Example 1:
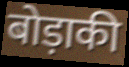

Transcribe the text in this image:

बोड़ाकी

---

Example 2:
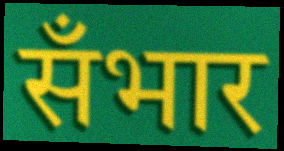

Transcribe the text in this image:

सँभार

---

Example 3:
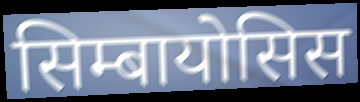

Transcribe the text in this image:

सिम्बायोसिस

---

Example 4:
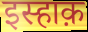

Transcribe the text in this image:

इस्हाक़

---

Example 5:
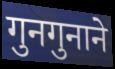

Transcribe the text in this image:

गुनगुनाने